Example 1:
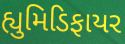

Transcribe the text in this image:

હ્યુમિડિફાયર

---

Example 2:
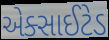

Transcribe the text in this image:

એક્સાઈટેડ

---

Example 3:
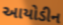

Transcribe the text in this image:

આયોડીન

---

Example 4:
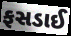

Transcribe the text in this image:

ફસડાઈ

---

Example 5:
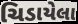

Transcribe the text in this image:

ચિડાયેલા